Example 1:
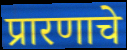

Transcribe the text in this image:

प्रारणाचे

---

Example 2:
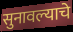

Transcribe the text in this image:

सुनावल्याचे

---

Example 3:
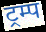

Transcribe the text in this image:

ट्रम्‍प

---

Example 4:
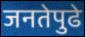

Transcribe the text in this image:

जनतेपुढे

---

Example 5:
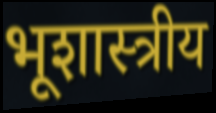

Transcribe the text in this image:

भूशास्त्रीय